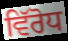
ਵਿੱਰੋਧ